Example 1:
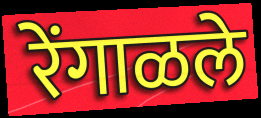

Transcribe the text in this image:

रेंगाळले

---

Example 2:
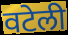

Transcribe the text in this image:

वटेली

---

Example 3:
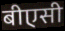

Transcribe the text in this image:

बीएसी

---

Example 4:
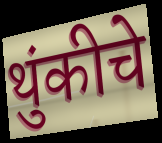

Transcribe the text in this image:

थुंकीचे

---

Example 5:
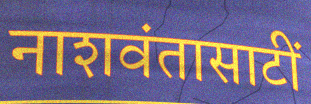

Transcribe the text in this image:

नाशवंतासाटीं